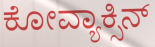
ಕೋವ್ಯಾಕ್ಸಿನ್